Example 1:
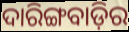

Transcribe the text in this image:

ଦାରିଙ୍ଗବାଡ଼ିର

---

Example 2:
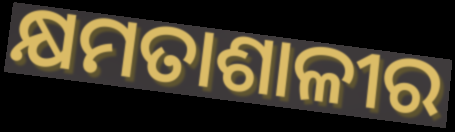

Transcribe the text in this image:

କ୍ଷମତାଶାଳୀର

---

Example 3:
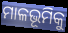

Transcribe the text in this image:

ମାଳଭୂମିକୁ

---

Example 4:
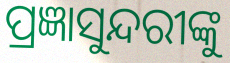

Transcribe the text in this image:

ପ୍ରଜ୍ଞାସୁନ୍ଦରୀଙ୍କୁ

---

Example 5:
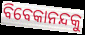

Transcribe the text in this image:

ବିବେକାନନ୍ଦକୁ